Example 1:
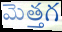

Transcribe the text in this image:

మెత్తగ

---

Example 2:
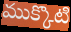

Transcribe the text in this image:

ముక్కొటి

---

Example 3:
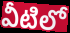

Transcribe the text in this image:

వీటిలో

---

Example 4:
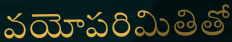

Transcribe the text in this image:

వయోపరిమితితో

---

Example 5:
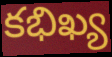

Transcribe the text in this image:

కభిఖ్య